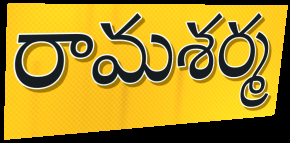
రామశర్మ